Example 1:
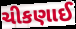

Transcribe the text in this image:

ચીકણાઈ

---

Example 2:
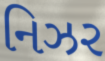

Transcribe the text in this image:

નિઝર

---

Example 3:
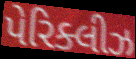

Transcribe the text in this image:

પેરિક્લીઝ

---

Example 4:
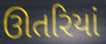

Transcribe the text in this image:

ઊતરિયાં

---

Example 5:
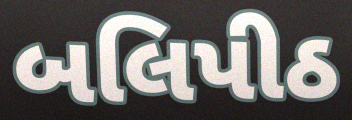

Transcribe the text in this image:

બલિપીઠ